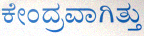
ಕೇಂದ್ರವಾಗಿತ್ತು